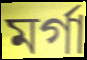
মৰ্গা